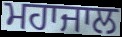
ਮਹਾਜਾਲ